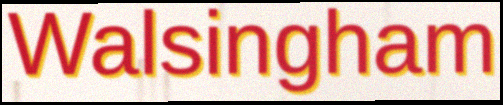
Walsingham